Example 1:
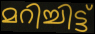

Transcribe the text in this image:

മറിച്ചിട്ട്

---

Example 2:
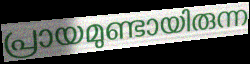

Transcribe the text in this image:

പ്രായമുണ്ടായിരുന്ന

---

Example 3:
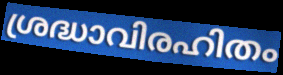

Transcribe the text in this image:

ശ്രദ്ധാവിരഹിതം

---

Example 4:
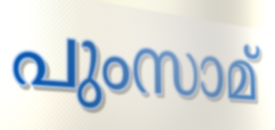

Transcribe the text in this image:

പുംസാമ്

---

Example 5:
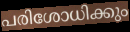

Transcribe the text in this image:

പരിശോധിക്കും